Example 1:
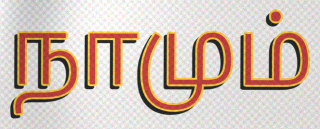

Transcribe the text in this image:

நாமும்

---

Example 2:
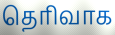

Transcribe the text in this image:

தெரிவாக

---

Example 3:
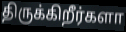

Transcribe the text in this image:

திருக்கிறீர்களா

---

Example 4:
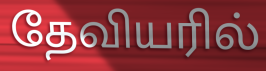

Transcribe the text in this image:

தேவியரில்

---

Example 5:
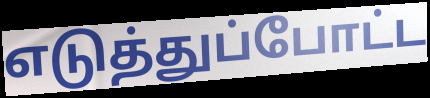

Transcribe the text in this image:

எடுத்துப்போட்ட